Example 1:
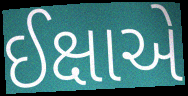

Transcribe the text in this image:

ઈક્ષાએ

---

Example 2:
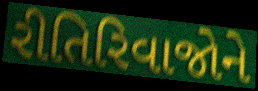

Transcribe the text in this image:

રીતિરિવાજોને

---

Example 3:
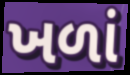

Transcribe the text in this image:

ખળાં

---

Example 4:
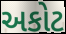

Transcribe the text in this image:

અકોટ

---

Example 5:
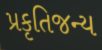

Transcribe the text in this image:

પ્રકૃતિજન્ય